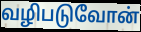
வழிபடுவோன்